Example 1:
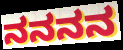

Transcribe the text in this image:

ನನನನ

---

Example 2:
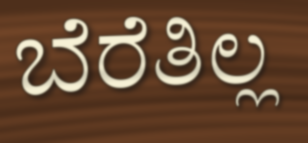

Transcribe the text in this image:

ಬೆರೆತಿಲ್ಲ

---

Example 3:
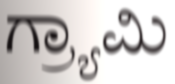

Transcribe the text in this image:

ಗ್ರ್ಯಾಮಿ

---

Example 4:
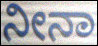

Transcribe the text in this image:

ನೀನಾ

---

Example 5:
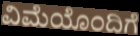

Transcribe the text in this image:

ವಿಮೆಯೊಂದಿಗೆ